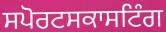
ਸਪੋਰਟਸਕਾਸਟਿੰਗ